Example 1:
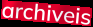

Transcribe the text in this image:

archiveis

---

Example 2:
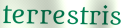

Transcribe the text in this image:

terrestris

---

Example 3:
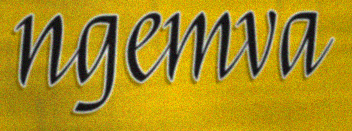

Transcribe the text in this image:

ngemva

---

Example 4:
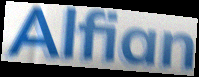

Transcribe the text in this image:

Alfian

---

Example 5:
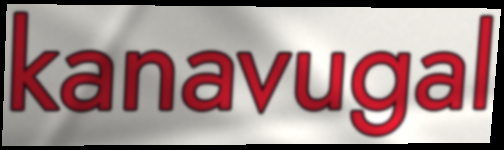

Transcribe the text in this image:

kanavugal